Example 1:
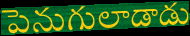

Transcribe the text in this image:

పెనుగులాడాడు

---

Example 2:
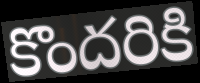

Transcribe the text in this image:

కొందరికి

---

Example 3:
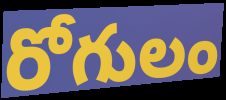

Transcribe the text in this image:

రోగులం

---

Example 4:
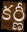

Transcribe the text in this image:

కర్ణీ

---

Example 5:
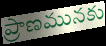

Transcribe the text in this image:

ప్రాణమునకు